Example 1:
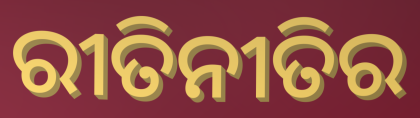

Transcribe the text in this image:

ରୀତିନୀତିର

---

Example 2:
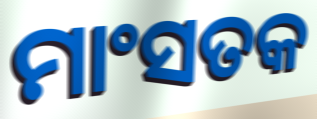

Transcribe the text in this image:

ମାଂସତକ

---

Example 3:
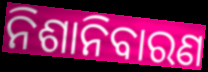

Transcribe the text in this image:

ନିଶାନିବାରଣ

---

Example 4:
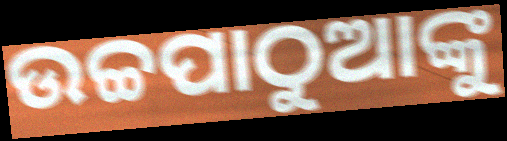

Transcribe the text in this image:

ଉଚ୍ଚପାଠୁଆଙ୍କୁ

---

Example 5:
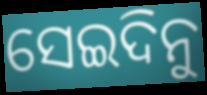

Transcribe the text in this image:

ସେଇଦିନୁ